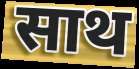
साथ